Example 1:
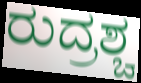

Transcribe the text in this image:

ರುದ್ರಶ್ಚ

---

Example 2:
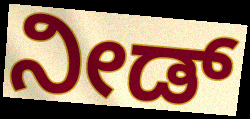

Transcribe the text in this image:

ನೀಡ್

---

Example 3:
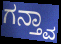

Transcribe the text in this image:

ಗನ್ತ್ವಾ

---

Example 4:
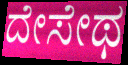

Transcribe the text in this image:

ದೇಸೇಥ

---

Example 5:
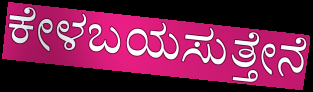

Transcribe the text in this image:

ಕೇಳಬಯಸುತ್ತೇನೆ